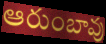
ఆరుంబావు